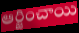
ఆర్జించాయి